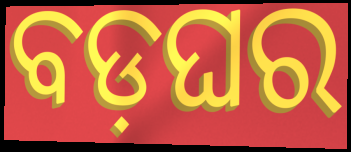
ବଡ଼ଘର